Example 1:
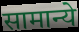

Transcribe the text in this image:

सामान्ये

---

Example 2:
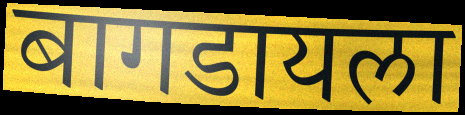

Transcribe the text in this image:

बागडायला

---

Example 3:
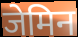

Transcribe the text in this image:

जेमिन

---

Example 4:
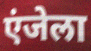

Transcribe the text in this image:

एंजेला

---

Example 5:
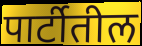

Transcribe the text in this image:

पार्टीतील